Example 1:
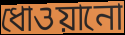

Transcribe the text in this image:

ধোওয়ানো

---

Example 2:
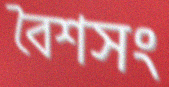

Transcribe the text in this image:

বৈশসং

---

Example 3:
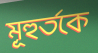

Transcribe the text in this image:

মূহুর্তকে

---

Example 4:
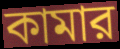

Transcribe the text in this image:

কামার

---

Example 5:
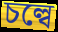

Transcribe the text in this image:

চল্বে